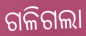
ଗଳିଗଲା